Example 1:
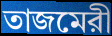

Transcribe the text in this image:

তাজমেরী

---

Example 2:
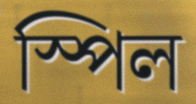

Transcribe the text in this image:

স্পিল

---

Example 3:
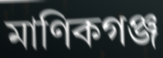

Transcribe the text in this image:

মাণিকগঞ্জ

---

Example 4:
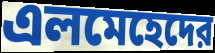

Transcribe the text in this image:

এলমেহেদের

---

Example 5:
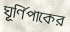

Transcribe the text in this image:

ঘূর্ণিপাকের